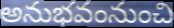
అనుభవంనుంచి